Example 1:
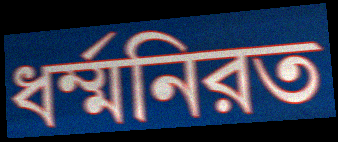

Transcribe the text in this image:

ধর্ম্মনিরত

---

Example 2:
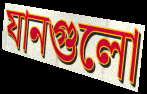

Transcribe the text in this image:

যানগুলো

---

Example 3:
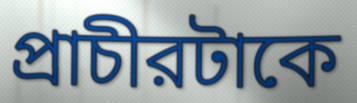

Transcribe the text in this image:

প্রাচীরটাকে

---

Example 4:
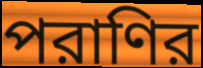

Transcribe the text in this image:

পরাণির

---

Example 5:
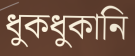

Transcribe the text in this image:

ধুকধুকানি